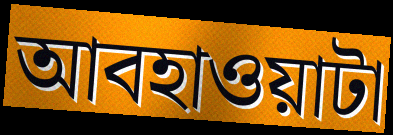
আবহাওয়াটা